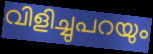
വിളിച്ചുപറയും